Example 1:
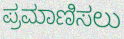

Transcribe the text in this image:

ಪ್ರಮಾಣಿಸಲು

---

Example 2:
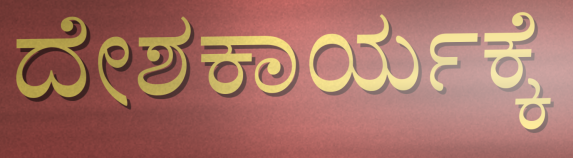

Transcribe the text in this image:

ದೇಶಕಾರ್ಯಕ್ಕೆ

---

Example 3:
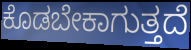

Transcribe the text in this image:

ಕೊಡಬೇಕಾಗುತ್ತದೆ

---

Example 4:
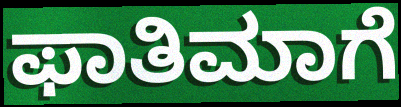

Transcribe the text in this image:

ಫಾತಿಮಾಗೆ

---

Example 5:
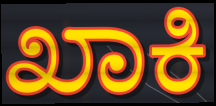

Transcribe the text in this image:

ಖಾಕಿ